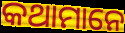
କଥାମାନେ